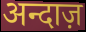
अन्दाज़